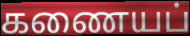
கணையப்